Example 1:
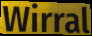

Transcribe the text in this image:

Wirral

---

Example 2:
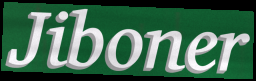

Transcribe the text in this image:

Jiboner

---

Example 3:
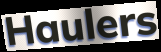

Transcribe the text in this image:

Haulers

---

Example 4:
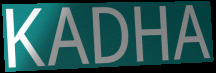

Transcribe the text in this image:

KADHA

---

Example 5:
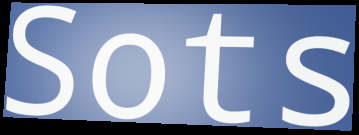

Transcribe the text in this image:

Sots